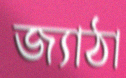
জ্যাঠা